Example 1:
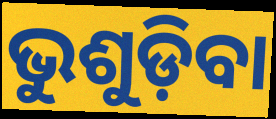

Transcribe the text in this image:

ଭୁଶୁଡ଼ିବା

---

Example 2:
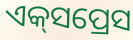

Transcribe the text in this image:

ଏକ୍‌ସପ୍ରେସ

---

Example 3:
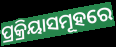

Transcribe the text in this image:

ପ୍ରକ୍ରିୟାସମୂହରେ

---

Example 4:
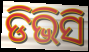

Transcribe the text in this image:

ଡିଭିସି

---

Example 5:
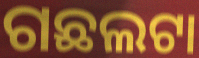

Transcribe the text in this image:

ଗଛଲଟା